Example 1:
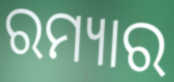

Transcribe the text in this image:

ରମ୍ୟାର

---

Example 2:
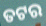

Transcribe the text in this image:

ତଟର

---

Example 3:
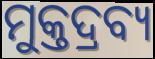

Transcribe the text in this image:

ମୁକ୍ତଦ୍ରବ୍ୟ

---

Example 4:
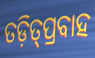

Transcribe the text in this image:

ତଡ଼ିତ୍‌ପ୍ରବାହ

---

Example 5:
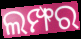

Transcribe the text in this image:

ଲମ୍ଫର